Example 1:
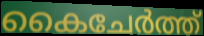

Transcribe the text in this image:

കൈചേർത്ത്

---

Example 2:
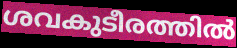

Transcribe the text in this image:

ശവകുടീരത്തിൽ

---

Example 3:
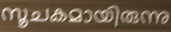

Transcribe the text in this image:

സൂചകമായിരുന്നു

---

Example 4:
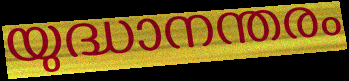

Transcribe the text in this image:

യുദ്ധാനന്തരം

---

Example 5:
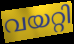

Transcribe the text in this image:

വയറ്റി